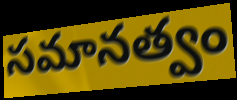
సమానత్వం